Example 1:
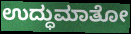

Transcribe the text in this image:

ಉದ್ಧುಮಾತೋ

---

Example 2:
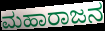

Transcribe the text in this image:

ಮಹಾರಾಜನ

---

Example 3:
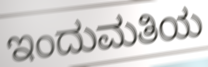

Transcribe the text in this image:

ಇಂದುಮತಿಯ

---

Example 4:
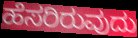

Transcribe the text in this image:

ಹೆಸರಿರುವುದು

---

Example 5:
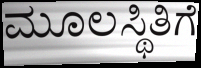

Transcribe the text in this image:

ಮೂಲಸ್ಥಿತಿಗೆ